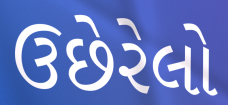
ઉછેરેલો